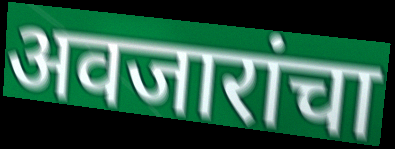
अवजारांचा